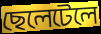
ছেলেটেলে